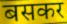
बसकर